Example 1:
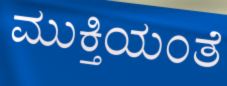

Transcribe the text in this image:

ಮುಕ್ತಿಯಂತೆ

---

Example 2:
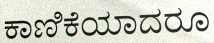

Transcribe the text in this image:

ಕಾಣಿಕೆಯಾದರೂ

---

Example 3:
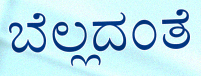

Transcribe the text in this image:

ಬೆಲ್ಲದಂತೆ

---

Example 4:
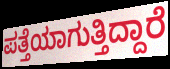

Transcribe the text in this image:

ಪತ್ತೆಯಾಗುತ್ತಿದ್ದಾರೆ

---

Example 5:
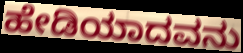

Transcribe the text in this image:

ಹೇಡಿಯಾದವನು